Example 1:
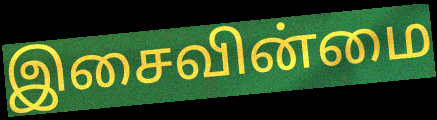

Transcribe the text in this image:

இசைவின்மை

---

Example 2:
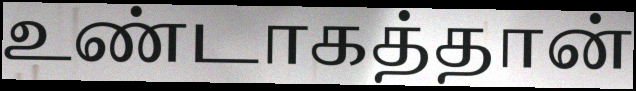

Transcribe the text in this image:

உண்டாகத்தான்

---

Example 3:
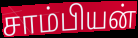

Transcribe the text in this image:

சாம்பியன்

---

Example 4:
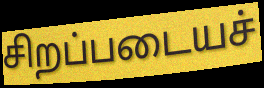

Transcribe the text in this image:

சிறப்படையச்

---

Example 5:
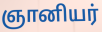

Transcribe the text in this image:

ஞானியர்